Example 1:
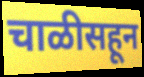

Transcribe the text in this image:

चाळीसहून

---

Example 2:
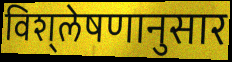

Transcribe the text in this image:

विश्लेषणानुसार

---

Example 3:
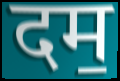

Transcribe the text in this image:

दम॒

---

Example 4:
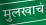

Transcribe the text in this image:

मुलखाचं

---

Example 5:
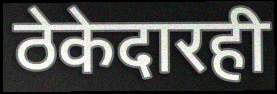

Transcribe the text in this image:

ठेकेदारही